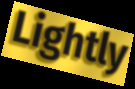
Lightly